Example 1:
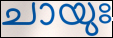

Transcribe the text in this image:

ചായുഃ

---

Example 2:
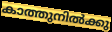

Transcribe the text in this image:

കാത്തുനിൽക്കു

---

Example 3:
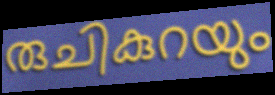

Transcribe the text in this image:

രുചികുറയും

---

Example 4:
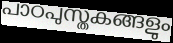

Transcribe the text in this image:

പാഠപുസ്തകങ്ങളും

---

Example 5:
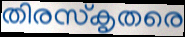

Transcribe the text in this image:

തിരസ്കൃതരെ